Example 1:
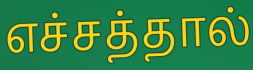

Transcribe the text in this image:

எச்சத்தால்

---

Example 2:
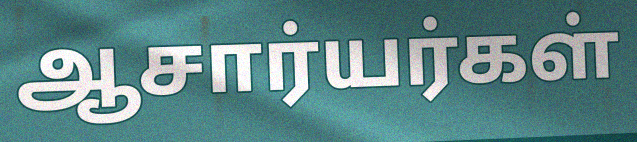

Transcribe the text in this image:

ஆசார்யர்கள்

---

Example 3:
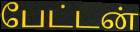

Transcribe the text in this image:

பேட்டன்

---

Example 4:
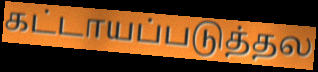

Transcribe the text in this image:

கட்டாயப்படுத்தல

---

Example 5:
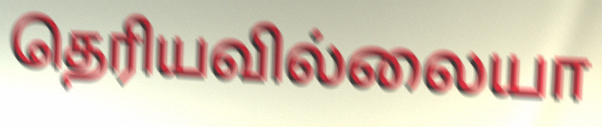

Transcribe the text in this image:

தெரியவில்லையா